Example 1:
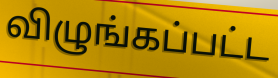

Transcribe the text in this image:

விழுங்கப்பட்ட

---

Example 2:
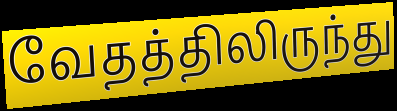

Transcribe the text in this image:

வேதத்திலிருந்து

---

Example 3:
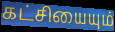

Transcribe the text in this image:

கட்சியையும்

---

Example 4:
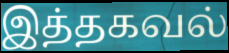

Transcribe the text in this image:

இத்தகவல்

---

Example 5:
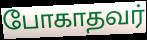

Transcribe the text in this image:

போகாதவர்